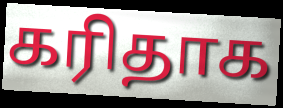
கரிதாக